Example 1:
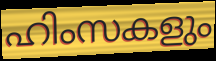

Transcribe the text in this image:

ഹിംസകളും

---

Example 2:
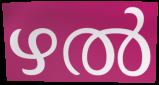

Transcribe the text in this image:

ഴൽ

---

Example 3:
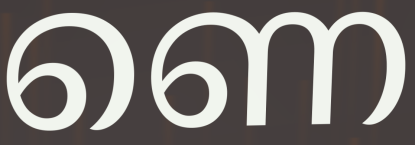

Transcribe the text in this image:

ണെ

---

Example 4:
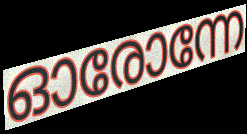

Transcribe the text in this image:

ഓരോന്നേ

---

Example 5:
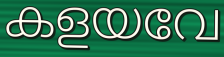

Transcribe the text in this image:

കളയവേ